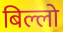
बिल्लो